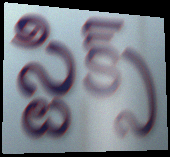
స్టిక్స్